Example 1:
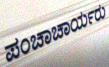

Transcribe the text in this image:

ಪಂಚಾಚಾರ್ಯರು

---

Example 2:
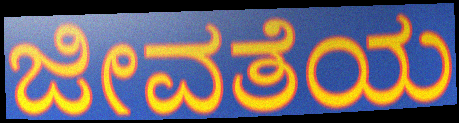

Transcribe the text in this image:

ಜೀವತೆಯ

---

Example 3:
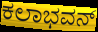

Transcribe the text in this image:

ಕಲಾಭವನ್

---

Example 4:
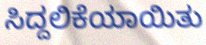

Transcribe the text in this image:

ಸಿದ್ದಲಿಕೆಯಾಯಿತು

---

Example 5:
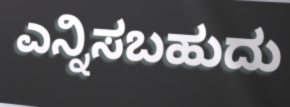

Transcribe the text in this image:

ಎನ್ನಿಸಬಹುದು